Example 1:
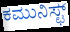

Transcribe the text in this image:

ಕಮುನಿಸ್ಟ್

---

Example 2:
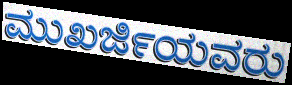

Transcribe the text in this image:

ಮುಖರ್ಜಿಯವರು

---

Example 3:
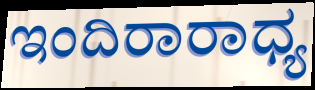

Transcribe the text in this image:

ಇಂದಿರಾರಾಧ್ಯ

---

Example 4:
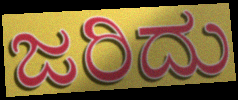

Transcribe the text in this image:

ಜರಿದು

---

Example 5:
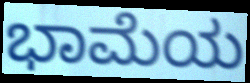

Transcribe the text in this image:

ಭಾಮೆಯ